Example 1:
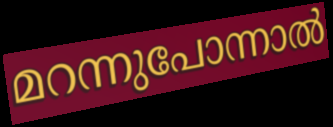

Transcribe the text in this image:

മറന്നുപോന്നാൽ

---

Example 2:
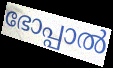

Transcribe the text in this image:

ഭോപ്പാൽ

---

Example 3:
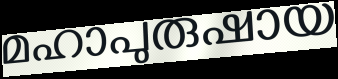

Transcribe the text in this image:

മഹാപുരുഷായ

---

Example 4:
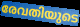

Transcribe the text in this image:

രേവതിയുടെ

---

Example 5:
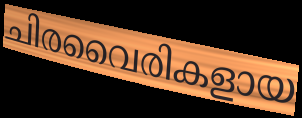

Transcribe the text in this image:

ചിരവൈരികളായ